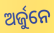
ଅର୍ଜୁନେ